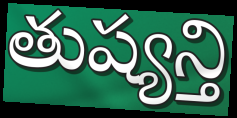
తుష్యన్తి